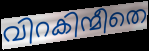
വിറകിന്മീതെ